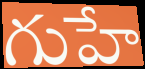
గుహే